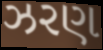
ઝરણ